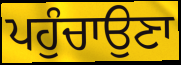
ਪਹੁੰਚਾਉਣਾ